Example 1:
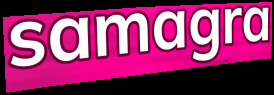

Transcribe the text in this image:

samagra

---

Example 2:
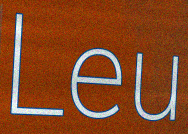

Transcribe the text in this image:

Leu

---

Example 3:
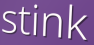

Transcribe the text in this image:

stink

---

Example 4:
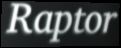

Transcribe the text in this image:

Raptor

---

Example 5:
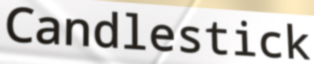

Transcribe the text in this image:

Candlestick